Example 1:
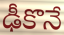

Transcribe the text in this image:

ఢీకొనే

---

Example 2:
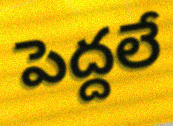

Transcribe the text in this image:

పెద్దలే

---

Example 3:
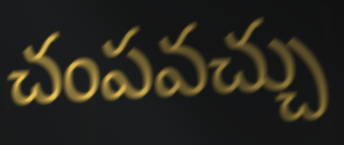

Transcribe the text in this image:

చంపవచ్చు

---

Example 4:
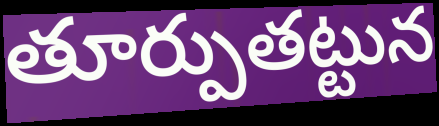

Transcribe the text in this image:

తూర్పుతట్టున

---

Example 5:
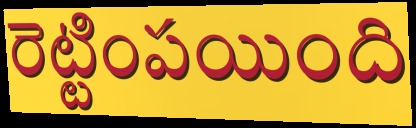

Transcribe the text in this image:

రెట్టింపయింది